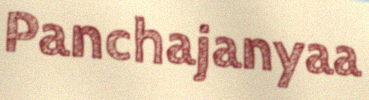
Panchajanyaa